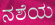
ನಶೆಯ